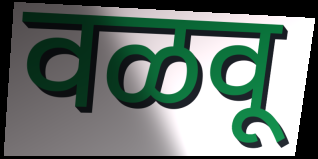
वळवू